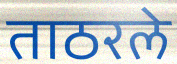
ताठरले